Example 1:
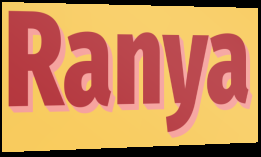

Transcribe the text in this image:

Ranya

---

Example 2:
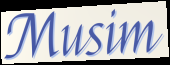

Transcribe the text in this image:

Musim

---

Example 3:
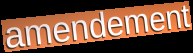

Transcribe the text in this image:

amendement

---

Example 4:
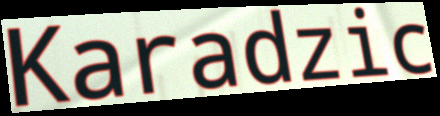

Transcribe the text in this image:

Karadzic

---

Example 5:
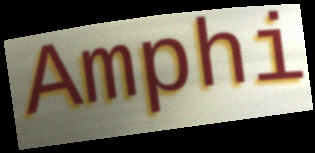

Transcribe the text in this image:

Amphi